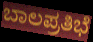
ಬಾಲಪ್ರತಿಭೆ